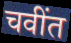
चवींत